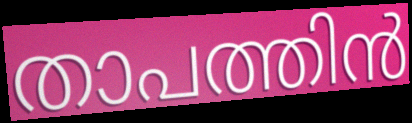
താപത്തിൻ